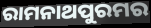
ରାମନାଥପୁରମର